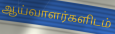
ஆய்வாளர்களிடம்